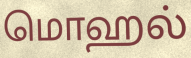
மொஹல்